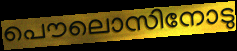
പൌലൊസിനോടു